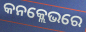
କନକ୍ଲେଭରେ